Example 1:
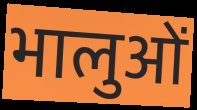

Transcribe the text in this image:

भालुओं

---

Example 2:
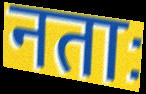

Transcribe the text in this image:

नताः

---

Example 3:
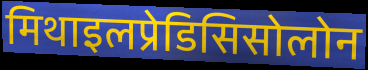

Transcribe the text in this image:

मिथाइलप्रेडिसिसोलोन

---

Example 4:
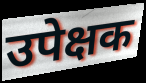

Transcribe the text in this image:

उपेक्षक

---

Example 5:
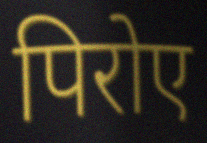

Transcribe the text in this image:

पिरोए